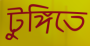
টুঙ্গিতে